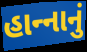
હાન્‍નાનું